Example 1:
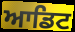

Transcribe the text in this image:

ਆਡਿਟ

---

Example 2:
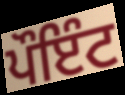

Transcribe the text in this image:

ਪੌਇੰਟ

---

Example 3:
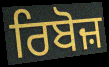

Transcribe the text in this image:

ਰਿਬੋਜ਼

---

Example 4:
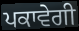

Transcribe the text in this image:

ਪਕਾਵੇਗੀ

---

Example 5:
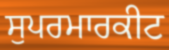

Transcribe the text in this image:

ਸੁਪਰਮਾਰਕੀਟ